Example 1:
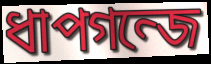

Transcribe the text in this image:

ধাপগন্জে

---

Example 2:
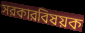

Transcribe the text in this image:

সরকারবিষয়ক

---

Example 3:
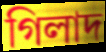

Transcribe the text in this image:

গিলাদ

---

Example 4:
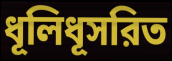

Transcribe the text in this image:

ধূলিধূসরিত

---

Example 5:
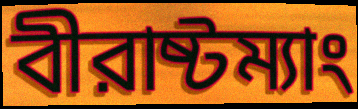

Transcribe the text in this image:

বীরাষ্টম্যাং